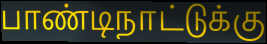
பாண்டிநாட்டுக்கு